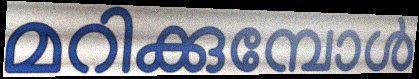
മറിക്കുമ്പോൾ